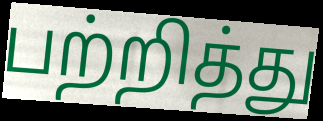
பற்றித்து